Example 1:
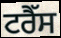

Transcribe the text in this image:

ਟਰੈੱਸ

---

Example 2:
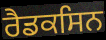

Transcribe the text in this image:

ਰੈਡਕਸਿਨ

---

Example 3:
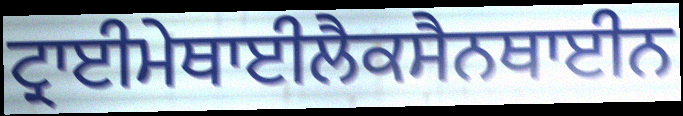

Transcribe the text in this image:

ਟ੍ਰਾਈਮੇਥਾਈਲੈਕਸੈਨਥਾਈਨ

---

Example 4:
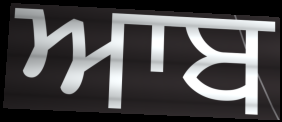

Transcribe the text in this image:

ਆਬ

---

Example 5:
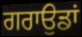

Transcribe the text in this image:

ਗਰਾਉਡਾਂ